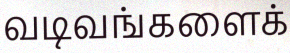
வடிவங்களைக்